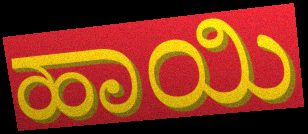
ಹಾಯಿ